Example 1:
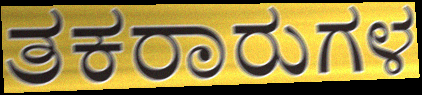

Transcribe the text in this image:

ತಕರಾರುಗಳ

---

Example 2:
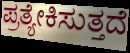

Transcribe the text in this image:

ಪ್ರತ್ಯೇಕಿಸುತ್ತದೆ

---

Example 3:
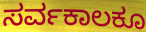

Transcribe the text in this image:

ಸರ್ವಕಾಲಕೂ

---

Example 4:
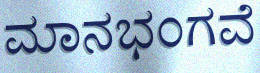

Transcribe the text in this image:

ಮಾನಭಂಗವೆ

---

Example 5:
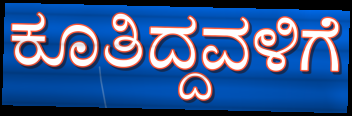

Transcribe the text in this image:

ಕೂತಿದ್ದವಳಿಗೆ